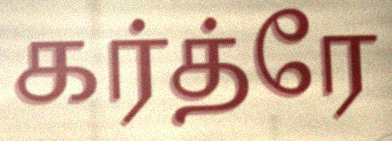
கர்த்ரே